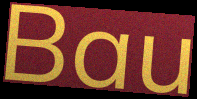
Bau